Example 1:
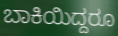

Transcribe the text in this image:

ಬಾಕಿಯಿದ್ದರೂ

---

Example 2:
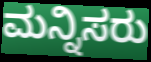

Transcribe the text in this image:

ಮನ್ನಿಸರು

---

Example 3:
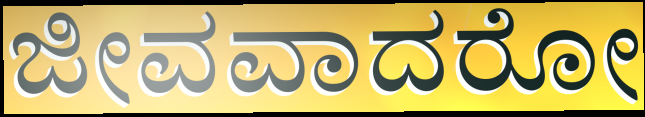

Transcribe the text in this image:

ಜೀವವಾದರೋ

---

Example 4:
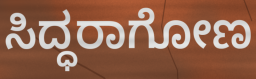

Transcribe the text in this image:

ಸಿದ್ಧರಾಗೋಣ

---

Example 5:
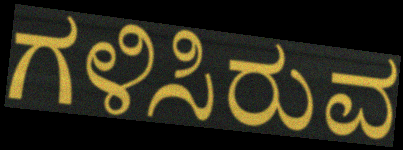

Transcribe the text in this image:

ಗಳಿಸಿರುವ